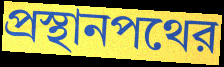
প্রস্থানপথের